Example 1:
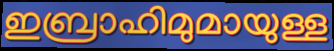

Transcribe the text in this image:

ഇബ്രാഹിമുമായുള്ള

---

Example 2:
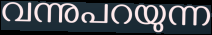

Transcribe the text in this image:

വന്നുപറയുന്ന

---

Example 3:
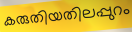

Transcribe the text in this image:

കരുതിയതിലപ്പുറം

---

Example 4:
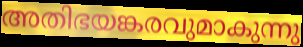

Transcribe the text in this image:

അതിഭയങ്കരവുമാകുന്നു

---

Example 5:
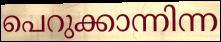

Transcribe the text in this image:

പെറുക്കാന്നിന്ന